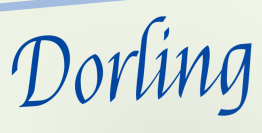
Dorling